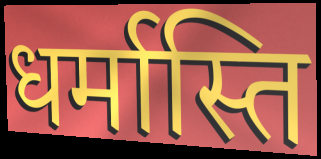
धर्मास्ति